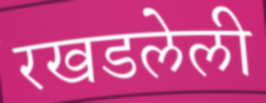
रखडलेली